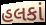
હલકાં